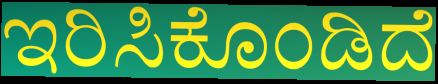
ಇರಿಸಿಕೊಂಡಿದೆ